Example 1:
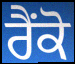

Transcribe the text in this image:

ਰੈਂਕੋ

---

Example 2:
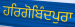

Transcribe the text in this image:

ਹਰਿਗੋਬਿੰਦਪੁਰਾ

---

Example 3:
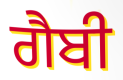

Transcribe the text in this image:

ਗੈਬੀ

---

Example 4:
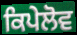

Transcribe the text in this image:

ਕਿਪੇਲੋਵ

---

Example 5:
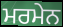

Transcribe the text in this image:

ਮਰਮੇਨ